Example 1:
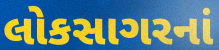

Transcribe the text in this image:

લોકસાગરનાં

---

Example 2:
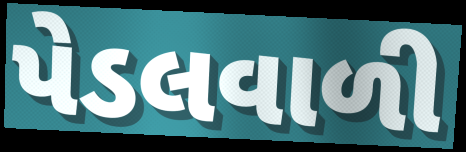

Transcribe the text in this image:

પેડલવાળી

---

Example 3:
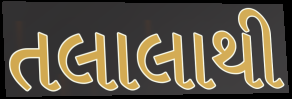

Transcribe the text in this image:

તલાલાથી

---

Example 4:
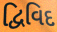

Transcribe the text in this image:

દ્વિવિદ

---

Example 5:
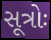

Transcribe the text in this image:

સૂત્રોઃ